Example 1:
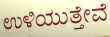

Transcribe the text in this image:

ಉಳಿಯುತ್ತೇವೆ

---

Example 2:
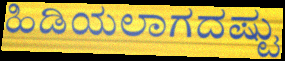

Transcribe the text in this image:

ಹಿಡಿಯಲಾಗದಷ್ಟು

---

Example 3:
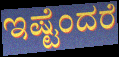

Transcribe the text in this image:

ಇಷ್ಟೆಂದರೆ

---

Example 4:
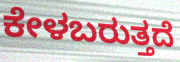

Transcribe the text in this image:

ಕೇಳಬರುತ್ತದೆ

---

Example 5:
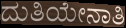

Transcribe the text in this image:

ದುತಿಯೇನಾತಿ